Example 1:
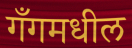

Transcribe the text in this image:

गँगमधील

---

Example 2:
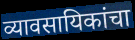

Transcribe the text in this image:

व्यावसायिकांचा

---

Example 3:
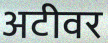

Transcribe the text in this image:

अटीवर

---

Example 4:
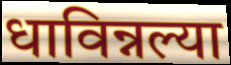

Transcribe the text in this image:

धाविन्नल्या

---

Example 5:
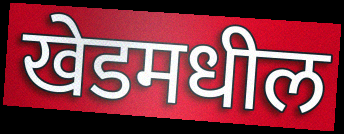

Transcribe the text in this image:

खेडमधील